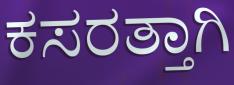
ಕಸರತ್ತಾಗಿ